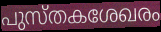
പുസ്തകശേഖരം